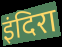
इंदिरा